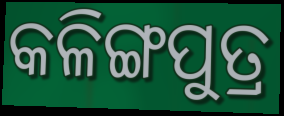
କଳିଙ୍ଗପୁତ୍ର